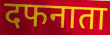
दफनाता